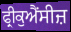
ਫ੍ਰੀਕੁਐਂਸੀਜ਼